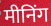
मीनिंग